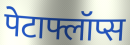
पेटाफ्लॉप्स